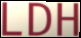
LDH